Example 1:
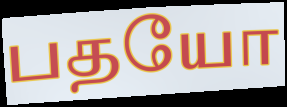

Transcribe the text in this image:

பதயோ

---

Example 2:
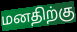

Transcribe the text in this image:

மனதிற்கு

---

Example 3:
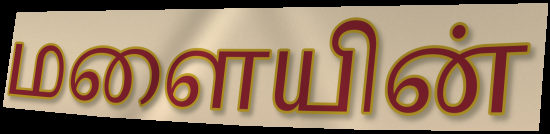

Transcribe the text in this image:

மளையின்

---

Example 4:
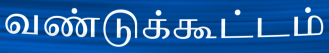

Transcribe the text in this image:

வண்டுக்கூட்டம்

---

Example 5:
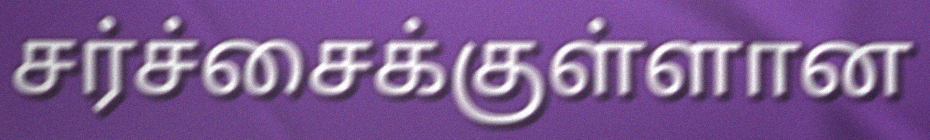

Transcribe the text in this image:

சர்ச்சைக்குள்ளான